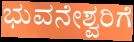
ಭುವನೇಶ್ವರಿಗೆ